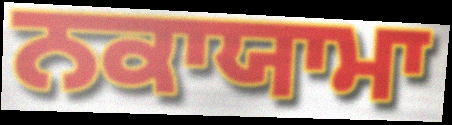
ਨਕਾਯਾਮਾ